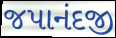
જપાનંદજી